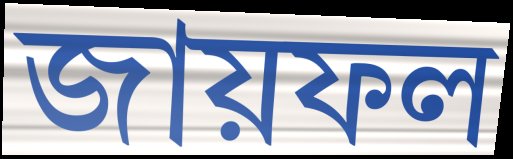
জায়ফল